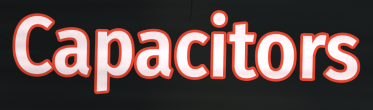
Capacitors